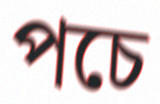
পচে